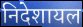
निदेशायल